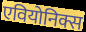
एवियोनिक्स